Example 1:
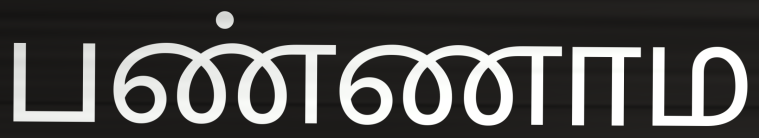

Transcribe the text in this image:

பண்ணாம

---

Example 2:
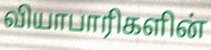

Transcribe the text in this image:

வியாபாரிகளின்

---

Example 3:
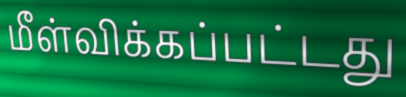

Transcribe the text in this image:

மீள்விக்கப்பட்டது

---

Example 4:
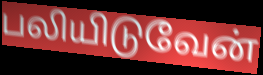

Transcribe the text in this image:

பலியிடுவேன்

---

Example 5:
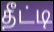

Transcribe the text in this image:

தீட்டி